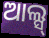
ଆଲ୍ସ୍